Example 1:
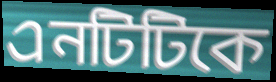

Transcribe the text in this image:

এনটিটিকে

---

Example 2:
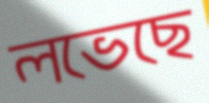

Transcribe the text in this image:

লভেছে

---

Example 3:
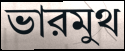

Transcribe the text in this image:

ভারমুথ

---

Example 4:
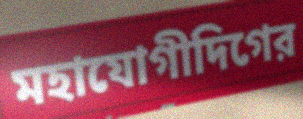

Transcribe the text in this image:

মহাযোগীদিগের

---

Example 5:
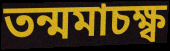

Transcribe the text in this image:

তন্মমাচক্ষ্ব